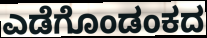
ಎಡೆಗೊಂಡಂಕದ